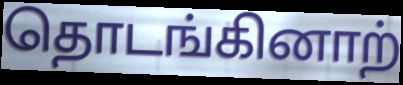
தொடங்கினாற்